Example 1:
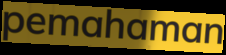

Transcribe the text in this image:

pemahaman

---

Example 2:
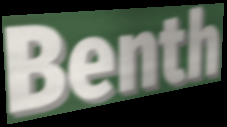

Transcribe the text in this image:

Benth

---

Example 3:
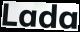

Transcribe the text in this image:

Lada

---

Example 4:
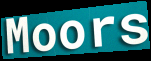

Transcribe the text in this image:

Moors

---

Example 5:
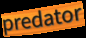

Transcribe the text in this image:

predator